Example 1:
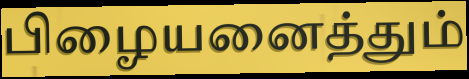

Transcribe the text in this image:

பிழையனைத்தும்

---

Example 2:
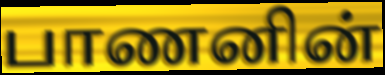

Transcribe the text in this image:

பாணனின்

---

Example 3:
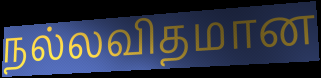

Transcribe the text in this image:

நல்லவிதமான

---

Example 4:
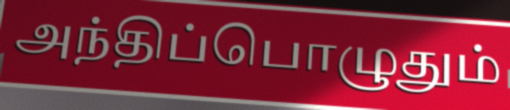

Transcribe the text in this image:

அந்திப்பொழுதும்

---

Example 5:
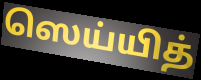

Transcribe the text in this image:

ஸெய்யித்